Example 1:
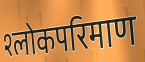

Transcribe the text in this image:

श्लोकपरिमाण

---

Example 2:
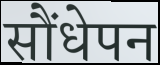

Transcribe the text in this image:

सौंधेपन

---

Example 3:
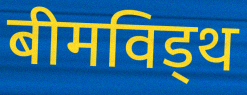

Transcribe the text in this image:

बीमविड्थ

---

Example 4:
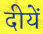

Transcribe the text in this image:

दीयें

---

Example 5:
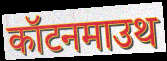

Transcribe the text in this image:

कॉटनमाउथ